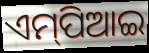
ଏମ୍‌ପିଆଇ